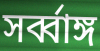
সর্ব্বাঙ্গ